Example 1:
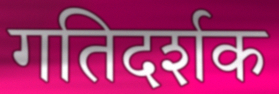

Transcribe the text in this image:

गतिदर्शक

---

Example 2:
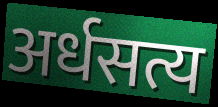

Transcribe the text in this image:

अर्धसत्य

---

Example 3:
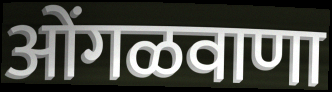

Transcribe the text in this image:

ओंगळवाणा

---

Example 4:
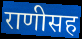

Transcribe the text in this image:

राणीसह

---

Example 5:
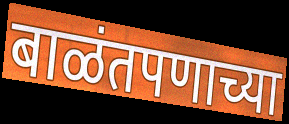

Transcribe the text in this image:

बाळंतपणाच्या